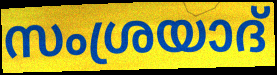
സംശ്രയാദ്